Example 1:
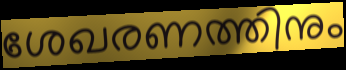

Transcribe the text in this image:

ശേഖരണത്തിനും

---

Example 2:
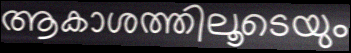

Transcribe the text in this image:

ആകാശത്തിലൂടെയും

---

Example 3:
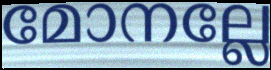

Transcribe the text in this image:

മോനല്ലേ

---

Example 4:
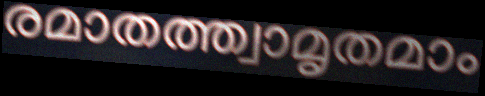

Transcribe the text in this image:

രമാതത്ത്വാമൃതമാം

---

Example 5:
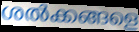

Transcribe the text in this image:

ശൽക്കങ്ങളെ